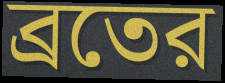
ব্রতের